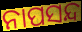
ନାପସନ୍ଦ